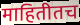
माहितीतच